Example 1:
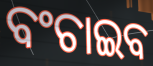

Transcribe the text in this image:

ବଂଚାଇବ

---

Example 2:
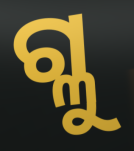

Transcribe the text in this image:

ଗ୍ଳୁ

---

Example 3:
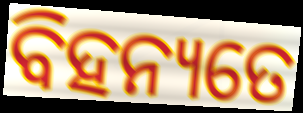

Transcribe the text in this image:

ବିହନ୍ୟତେ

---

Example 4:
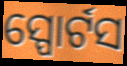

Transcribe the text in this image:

ସ୍ପୋର୍ଟସ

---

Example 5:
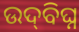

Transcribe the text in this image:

ଉଦ୍‌ବିଘ୍ନ